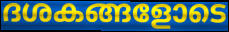
ദശകങ്ങളോടെ